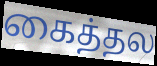
கைத்தல